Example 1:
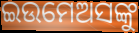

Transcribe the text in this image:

ଇଉମେଅସଙ୍କୁ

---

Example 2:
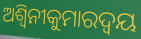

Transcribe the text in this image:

ଅଶ୍ୱିନୀକୁମାରଦ୍ୱୟ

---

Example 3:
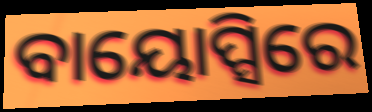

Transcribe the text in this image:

ବାୟୋପ୍ସିରେ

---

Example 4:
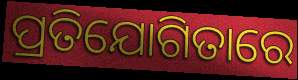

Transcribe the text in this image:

ପ୍ରତିଯୋଗିତାରେ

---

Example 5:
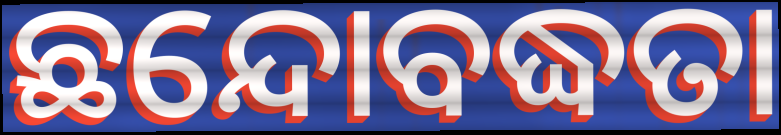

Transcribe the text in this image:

ଛନ୍ଦୋବଦ୍ଧତା